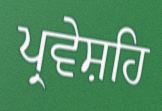
ਪ੍ਰਵੇਸ਼ਹਿ